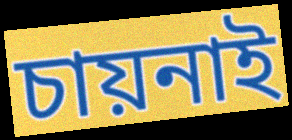
চায়নাই